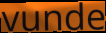
vunde